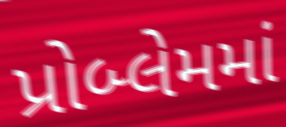
પ્રોબ્લેમમાં